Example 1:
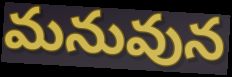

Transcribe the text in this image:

మనువున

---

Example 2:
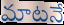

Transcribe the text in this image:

మాటనే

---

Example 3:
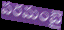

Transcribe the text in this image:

పరమంబై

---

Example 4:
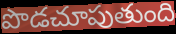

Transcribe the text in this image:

పొడచూపుతుంది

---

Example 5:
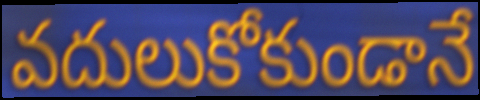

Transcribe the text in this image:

వదులుకోకుండానే